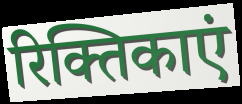
रिक्तिकाएं